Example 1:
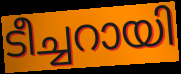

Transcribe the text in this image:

ടീച്ചറായി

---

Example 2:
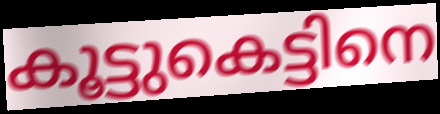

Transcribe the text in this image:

കൂട്ടുകെട്ടിനെ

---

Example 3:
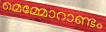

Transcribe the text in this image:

മെമ്മോറാണ്ടം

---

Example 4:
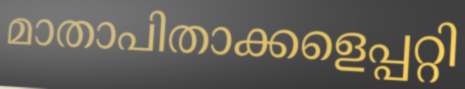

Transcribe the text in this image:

മാതാപിതാക്കളെപ്പറ്റി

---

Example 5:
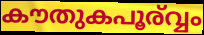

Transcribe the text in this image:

കൗതുകപൂര്വ്വം